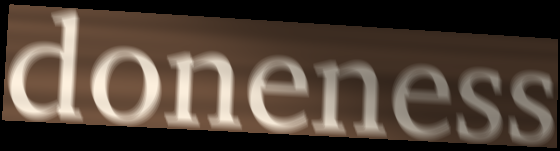
doneness